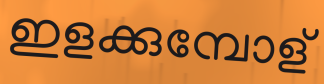
ഇളക്കുമ്പോള്